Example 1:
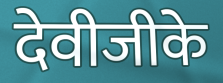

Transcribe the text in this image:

देवीजीके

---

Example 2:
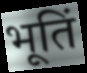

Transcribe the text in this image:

भूतिं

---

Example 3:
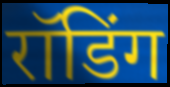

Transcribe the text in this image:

रॉडिंग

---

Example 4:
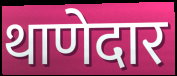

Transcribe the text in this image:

थाणेदार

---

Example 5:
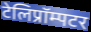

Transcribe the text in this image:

टेलिप्रॉम्पटर